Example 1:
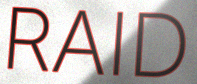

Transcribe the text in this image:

RAID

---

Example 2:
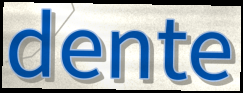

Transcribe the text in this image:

dente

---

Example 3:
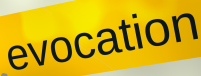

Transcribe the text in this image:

evocation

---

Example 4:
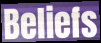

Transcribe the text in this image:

Beliefs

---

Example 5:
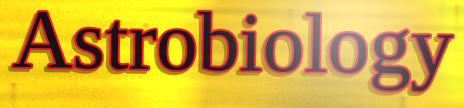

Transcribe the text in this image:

Astrobiology